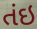
તંઇ